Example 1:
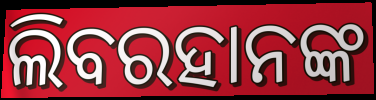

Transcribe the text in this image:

ଲିବରହାନଙ୍କ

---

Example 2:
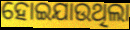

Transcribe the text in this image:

ହୋଇଯାଉଥିଲା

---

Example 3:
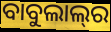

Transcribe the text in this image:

ବାବୁଲାଲ୍‍ର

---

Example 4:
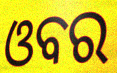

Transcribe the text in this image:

ଓବର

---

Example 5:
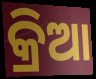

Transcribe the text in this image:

କ୍ରିଆ